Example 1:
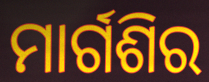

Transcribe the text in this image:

ମାର୍ଗଶିର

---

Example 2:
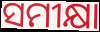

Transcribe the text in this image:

ସମୀକ୍ଷା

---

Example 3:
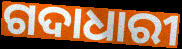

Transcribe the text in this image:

ଗଦାଧାରୀ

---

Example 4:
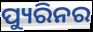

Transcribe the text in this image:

ପ୍ୟୁରିନର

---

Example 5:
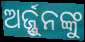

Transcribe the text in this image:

ଅର୍ଜ୍ଜୁନଙ୍କୁ